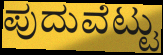
ಪುದುವೆಟ್ಟು